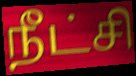
நீட்சி